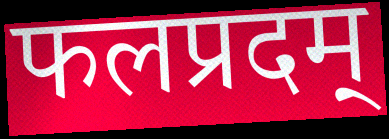
फलप्रदम्